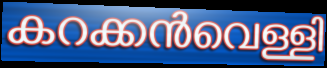
കറക്കൻവെള്ളി